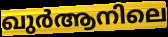
ഖുർആനിലെ